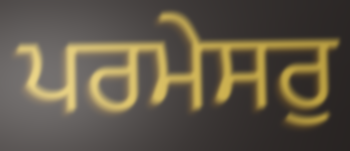
ਪਰਮੇਸਰੁ